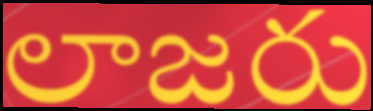
లాజరు